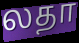
லதா